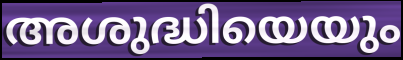
അശുദ്ധിയെയും